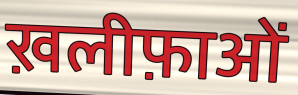
ख़लीफ़ाओं